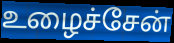
உழைச்சேன்